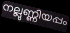
നല്ലുണ്ണിയപ്പം